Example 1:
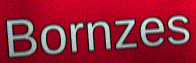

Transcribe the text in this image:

Bornzes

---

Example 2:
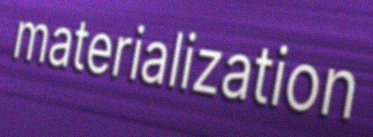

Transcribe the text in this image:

materialization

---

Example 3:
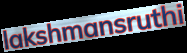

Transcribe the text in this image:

lakshmansruthi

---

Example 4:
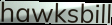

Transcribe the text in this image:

hawksbill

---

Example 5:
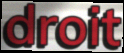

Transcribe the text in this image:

droit